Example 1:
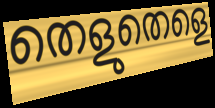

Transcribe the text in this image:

തെളുതെളെ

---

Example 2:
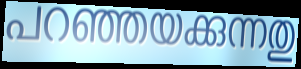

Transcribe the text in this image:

പറഞ്ഞയക്കുന്നതു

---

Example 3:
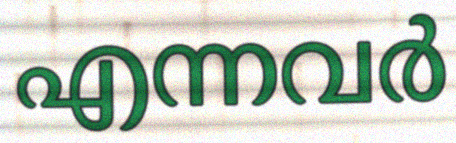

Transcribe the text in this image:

എന്നവർ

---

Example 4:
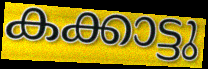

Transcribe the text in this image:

കക്കാട്ടു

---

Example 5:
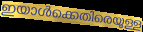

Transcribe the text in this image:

ഇയാൾക്കെതിരെയുള്ള